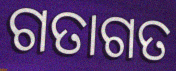
ଗତାଗତ